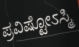
ಪ್ರವಿಷ್ಟೋಽಸ್ಮಿ